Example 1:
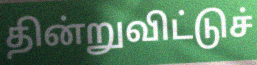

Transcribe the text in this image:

தின்றுவிட்டுச்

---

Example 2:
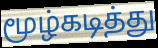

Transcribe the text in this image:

மூழ்கடித்து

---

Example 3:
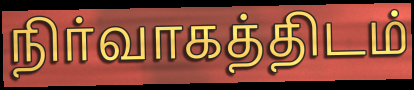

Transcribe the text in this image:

நிர்வாகத்திடம்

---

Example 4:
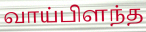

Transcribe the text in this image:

வாய்பிளந்த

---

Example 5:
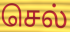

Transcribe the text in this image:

செல்